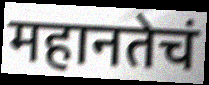
महानतेचं